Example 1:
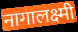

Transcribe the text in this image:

नागालक्ष्मी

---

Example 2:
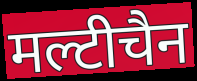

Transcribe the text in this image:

मल्टीचैन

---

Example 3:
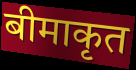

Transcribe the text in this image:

बीमाकृत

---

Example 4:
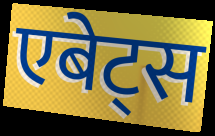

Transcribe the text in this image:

एबेट्स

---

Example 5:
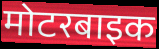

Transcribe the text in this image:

मोटरबाइक